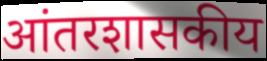
आंतरशासकीय